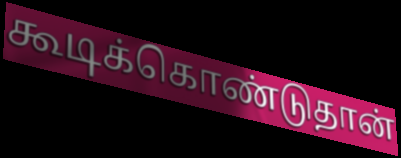
கூடிக்கொண்டுதான்